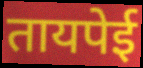
तायपेई